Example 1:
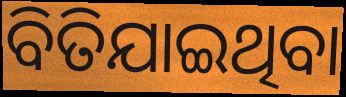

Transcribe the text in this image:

ବିତିଯାଇଥିବା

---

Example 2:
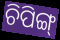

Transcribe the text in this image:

ଚିପିଙ୍ଗ୍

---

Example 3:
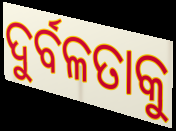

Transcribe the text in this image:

ଦୁର୍ବଳତାକୁ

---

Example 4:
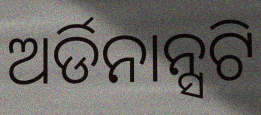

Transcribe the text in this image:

ଅର୍ଡିନାନ୍ସଟି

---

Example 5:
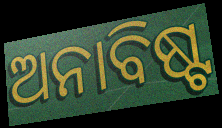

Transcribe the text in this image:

ଅନାବିଷ୍ଟ